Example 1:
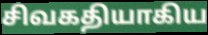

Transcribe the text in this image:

சிவகதியாகிய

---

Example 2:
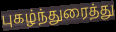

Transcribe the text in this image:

புகழ்ந்துரைத்து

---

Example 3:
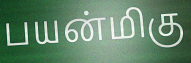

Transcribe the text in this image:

பயன்மிகு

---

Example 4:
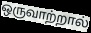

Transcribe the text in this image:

ஒருவாற்றால்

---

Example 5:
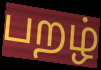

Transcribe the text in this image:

பறழ்